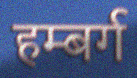
हम्बर्ग